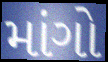
માંગો